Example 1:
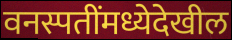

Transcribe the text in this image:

वनस्पतींमध्येदेखील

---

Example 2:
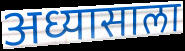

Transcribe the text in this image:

अध्यासाला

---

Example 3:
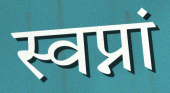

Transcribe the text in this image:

स्वप्नां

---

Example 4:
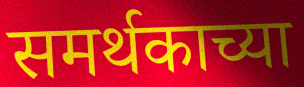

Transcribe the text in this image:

समर्थकाच्या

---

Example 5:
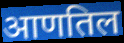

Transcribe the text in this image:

आणतिल